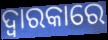
ଦ୍ବାରକାରେ